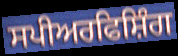
ਸਪੀਅਰਫਿਸ਼ਿੰਗ